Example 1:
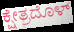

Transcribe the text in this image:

ಕ್ಷೇತ್ರದೊಳ್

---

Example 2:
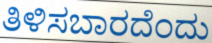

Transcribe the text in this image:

ತಿಳಿಸಬಾರದೆಂದು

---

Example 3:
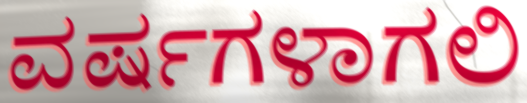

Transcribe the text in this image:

ವರ್ಷಗಳಾಗಲಿ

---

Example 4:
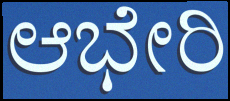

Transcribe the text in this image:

ಆಭೇರಿ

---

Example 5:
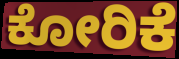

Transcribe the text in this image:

ಕೋರಿಕೆ